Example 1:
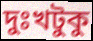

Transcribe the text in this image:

দুঃখটুকু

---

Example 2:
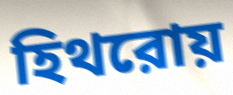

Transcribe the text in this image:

হিথরোয়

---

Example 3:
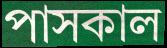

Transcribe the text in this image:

পাসকাল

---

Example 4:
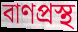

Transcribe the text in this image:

বাণপ্রস্থ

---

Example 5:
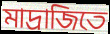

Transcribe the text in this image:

মাদ্রাজিতে